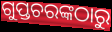
ଗୁପ୍ତଚରଙ୍କଠାରୁ